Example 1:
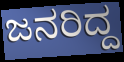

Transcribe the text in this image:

ಜನರಿದ್ದ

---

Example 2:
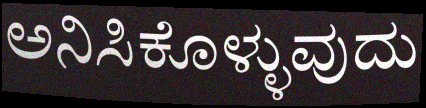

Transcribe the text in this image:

ಅನಿಸಿಕೊಳ್ಳುವುದು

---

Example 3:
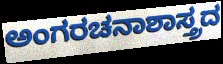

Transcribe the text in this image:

ಅಂಗರಚನಾಶಾಸ್ತ್ರದ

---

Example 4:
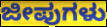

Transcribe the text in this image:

ಜೀಪುಗಳು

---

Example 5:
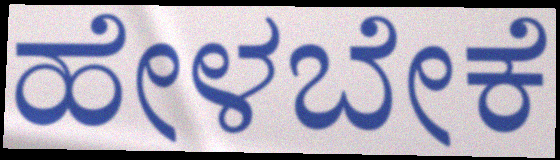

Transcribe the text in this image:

ಹೇಳಬೇಕೆ